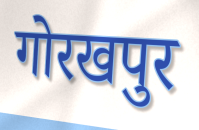
गोरखपुर